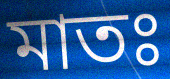
মাতঃ